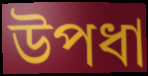
উপধা